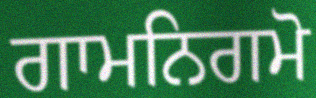
ਗਾਮਨਿਗਮੋ